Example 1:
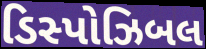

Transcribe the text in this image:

ડિસ્પોઝિબલ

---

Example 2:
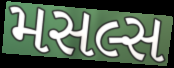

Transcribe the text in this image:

મસલ્સ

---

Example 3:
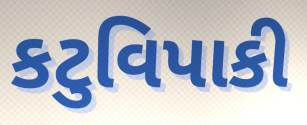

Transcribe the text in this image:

કટુવિપાકી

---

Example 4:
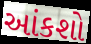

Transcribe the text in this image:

આંકશો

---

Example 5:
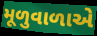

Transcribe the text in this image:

મૂળુવાળાએ